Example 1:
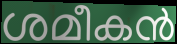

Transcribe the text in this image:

ശമീകൻ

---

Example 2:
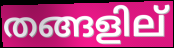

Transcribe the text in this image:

തങ്ങളില്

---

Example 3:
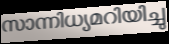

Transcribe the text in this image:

സാന്നിധ്യമറിയിച്ചു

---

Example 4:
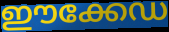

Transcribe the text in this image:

ഈക്കേഡ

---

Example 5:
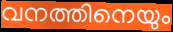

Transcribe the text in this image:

വനത്തിനെയും